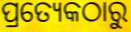
ପ୍ରତ୍ୟେକଠାରୁ